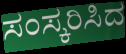
ಸಂಸ್ಕರಿಸಿದ